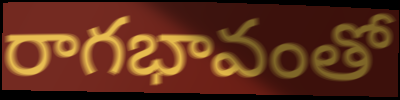
రాగభావంతో